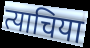
त्याचिया